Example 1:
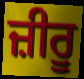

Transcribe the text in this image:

ਜ਼ੀਰੂ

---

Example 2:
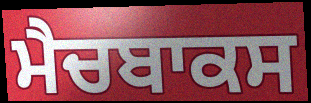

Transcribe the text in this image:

ਮੈਚਬਾਕਸ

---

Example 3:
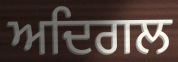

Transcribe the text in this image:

ਅਦਿਗਲ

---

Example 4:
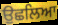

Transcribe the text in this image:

ਉਛਲਿਆ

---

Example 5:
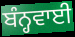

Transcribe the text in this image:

ਬੰਨ੍ਹਵਾਈ